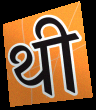
थी